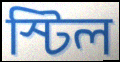
স্টিল